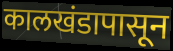
कालखंडापासून